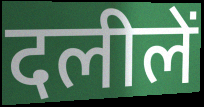
दलीलें